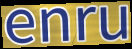
enru